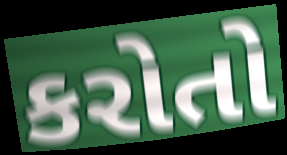
કરોતો